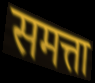
समत्ता